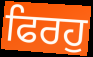
ਫਿਰਹੁ